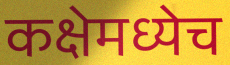
कक्षेमध्येच